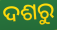
ଦଶରୁ